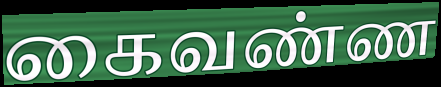
கைவண்ண